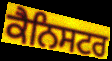
ਕੈਨਿਸਟਰ